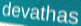
devathas